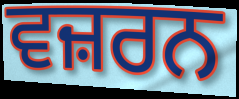
ਵਜ਼ਰਨ